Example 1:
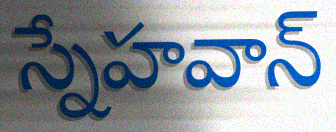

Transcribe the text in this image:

స్నేహవాన్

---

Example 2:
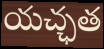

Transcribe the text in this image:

యచ్ఛత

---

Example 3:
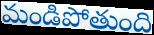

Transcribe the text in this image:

మండిపోతుంది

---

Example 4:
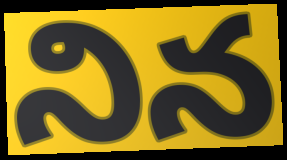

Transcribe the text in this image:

నిన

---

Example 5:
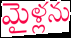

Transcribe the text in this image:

మైళ్లను